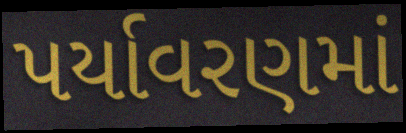
પર્યાવરણમાં